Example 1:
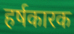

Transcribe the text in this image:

हर्षकारक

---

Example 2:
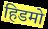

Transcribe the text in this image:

हिडमो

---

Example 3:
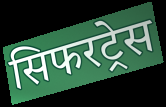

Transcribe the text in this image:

सिफरट्रेस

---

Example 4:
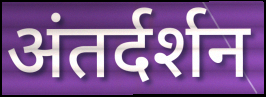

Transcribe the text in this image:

अंतर्दर्शन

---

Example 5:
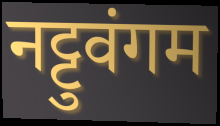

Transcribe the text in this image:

नट्टुवंगम